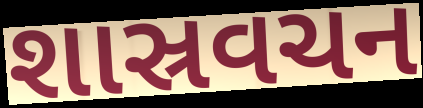
શાસ્રવચન